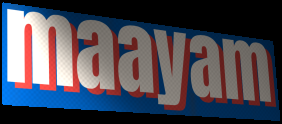
maayam